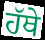
ਹੱਥੇ